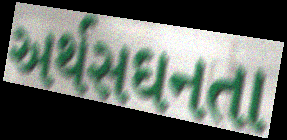
અર્થસઘનતા